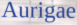
Aurigae